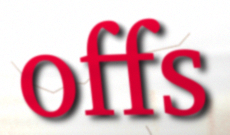
offs